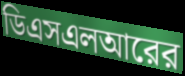
ডিএসএলআরের